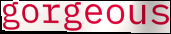
gorgeous